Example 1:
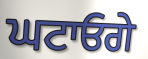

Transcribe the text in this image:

ਘਟਾਓਗੇ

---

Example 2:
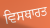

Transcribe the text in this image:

ਵਿਸਥਾਰਤ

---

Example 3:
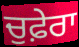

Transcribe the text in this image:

ਚੁਫ਼ੇਰਾ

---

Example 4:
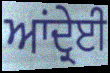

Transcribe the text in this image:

ਆਂਦ੍ਰੇਈ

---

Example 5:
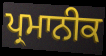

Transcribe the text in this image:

ਪ੍ਰਮਾਨੀਕ